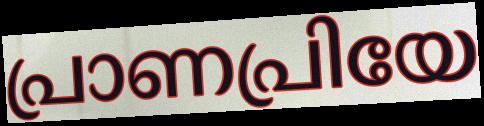
പ്രാണപ്രിയേ